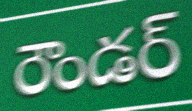
రౌండర్